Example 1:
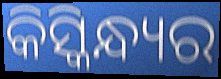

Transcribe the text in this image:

କିସ୍କିନ୍ଧ୍ୟର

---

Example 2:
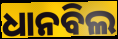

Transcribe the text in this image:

ଧାନବିଲ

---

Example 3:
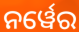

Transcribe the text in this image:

ନର୍ୱେର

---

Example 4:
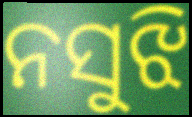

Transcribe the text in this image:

ନସୁଝି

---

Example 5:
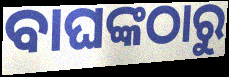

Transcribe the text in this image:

ବାଘଙ୍କଠାରୁ